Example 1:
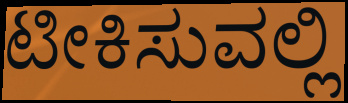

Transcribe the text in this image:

ಟೀಕಿಸುವಲ್ಲಿ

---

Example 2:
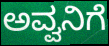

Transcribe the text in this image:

ಅವ್ವನಿಗೆ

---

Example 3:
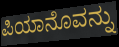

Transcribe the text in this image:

ಪಿಯಾನೊವನ್ನು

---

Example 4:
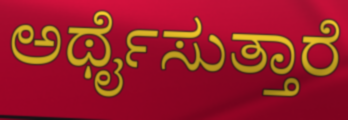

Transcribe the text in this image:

ಅರ್ಥೈಸುತ್ತಾರೆ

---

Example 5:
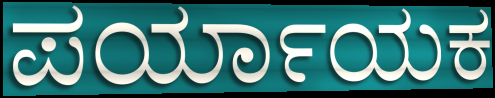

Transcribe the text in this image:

ಪರ್ಯಾಯಕ